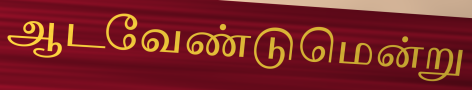
ஆடவேண்டுமென்று